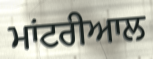
ਮਾਂਟਰੀਆਲ